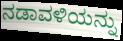
ನಡಾವಳಿಯನ್ನು